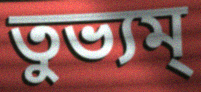
তুভ্যম্